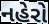
નહેરો